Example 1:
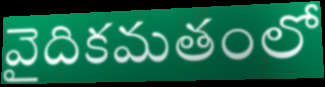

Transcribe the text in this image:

వైదికమతంలో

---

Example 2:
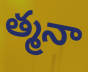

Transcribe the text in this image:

త్మనా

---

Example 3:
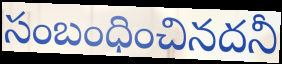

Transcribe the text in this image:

సంబంధించినదనీ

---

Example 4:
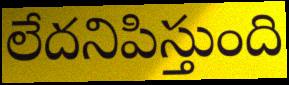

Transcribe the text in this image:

లేదనిపిస్తుంది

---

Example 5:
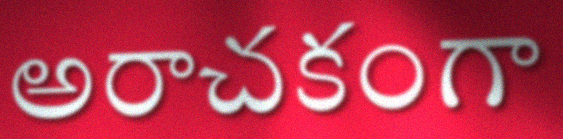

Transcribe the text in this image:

అరాచకంగా